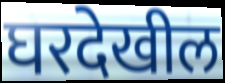
घरदेखील